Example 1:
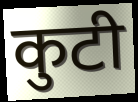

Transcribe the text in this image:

कुटी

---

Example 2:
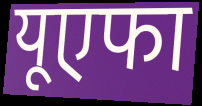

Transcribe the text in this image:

यूएफा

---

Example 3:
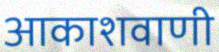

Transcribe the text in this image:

आकाशवाणी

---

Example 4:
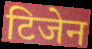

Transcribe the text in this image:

टिजेन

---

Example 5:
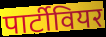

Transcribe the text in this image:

पार्टीवियर